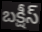
బక్షీస్